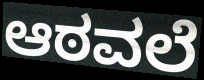
ಆಠವಲೆ